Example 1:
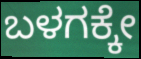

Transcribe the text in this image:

ಬಳಗಕ್ಕೇ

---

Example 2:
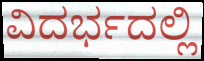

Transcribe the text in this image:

ವಿದರ್ಭದಲ್ಲಿ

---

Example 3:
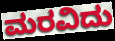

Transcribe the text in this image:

ಮರವಿದು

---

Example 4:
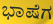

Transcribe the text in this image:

ಭಾಷೆಗ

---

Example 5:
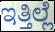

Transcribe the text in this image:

ಇತ್ತಿಲ್ಲೆ